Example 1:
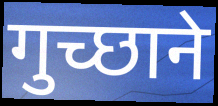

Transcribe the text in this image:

गुच्छाने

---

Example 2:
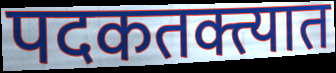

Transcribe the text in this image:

पदकतक्त्यात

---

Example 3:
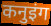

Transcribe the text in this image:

कनुइंग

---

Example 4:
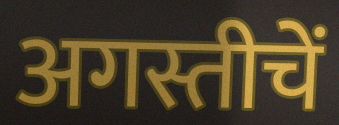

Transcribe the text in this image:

अगस्तीचें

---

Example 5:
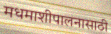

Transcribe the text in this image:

मधमाशीपालनासाठी